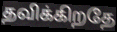
தவிக்கிறதே